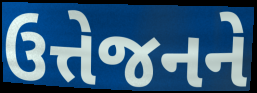
ઉત્તેજનને